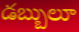
డబ్బులూ